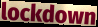
lockdown